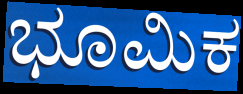
ಭೂಮಿಕ